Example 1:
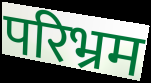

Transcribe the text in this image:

परिभ्रम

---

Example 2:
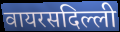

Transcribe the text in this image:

वायरसदिल्ली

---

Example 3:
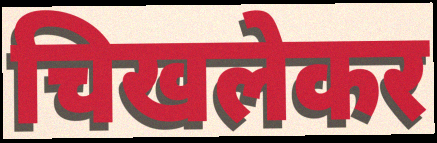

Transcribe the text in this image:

चिखलेकर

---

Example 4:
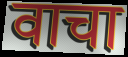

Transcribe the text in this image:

वाचा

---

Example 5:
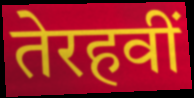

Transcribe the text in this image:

तेरहवीं